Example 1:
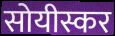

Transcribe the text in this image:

सोयीस्कर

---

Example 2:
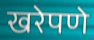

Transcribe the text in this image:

खरेपणे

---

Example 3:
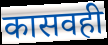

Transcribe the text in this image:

कासवही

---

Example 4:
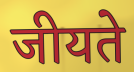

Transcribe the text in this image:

जीयते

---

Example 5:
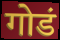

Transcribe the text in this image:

गोडं